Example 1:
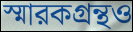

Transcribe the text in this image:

স্মারকগ্রন্থও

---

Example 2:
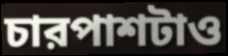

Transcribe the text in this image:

চারপাশটাও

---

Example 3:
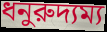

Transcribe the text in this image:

ধনুরুদ্যম্য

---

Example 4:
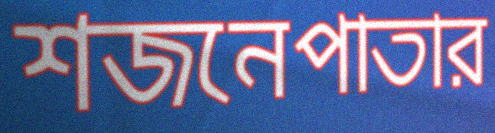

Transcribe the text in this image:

শজনেপাতার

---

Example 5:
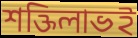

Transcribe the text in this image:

শক্তিলাভই